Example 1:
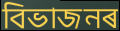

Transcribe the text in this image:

বিভাজনৰ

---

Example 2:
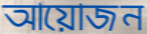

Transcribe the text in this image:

আয়োজন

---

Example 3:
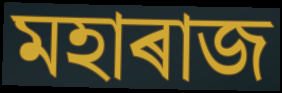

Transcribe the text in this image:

মহাৰাজ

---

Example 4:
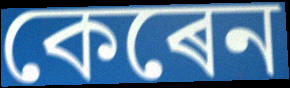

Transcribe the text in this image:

কেৰেন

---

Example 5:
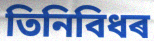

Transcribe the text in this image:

তিনিবিধৰ